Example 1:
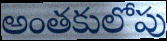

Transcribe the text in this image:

అంతకులోపు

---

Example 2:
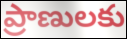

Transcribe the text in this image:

ప్రాణులకు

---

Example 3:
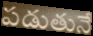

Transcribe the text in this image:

పడుతునే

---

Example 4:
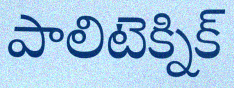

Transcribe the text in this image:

పాలిటెక్నిక్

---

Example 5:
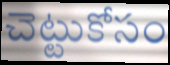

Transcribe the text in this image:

చెట్టుకోసం